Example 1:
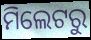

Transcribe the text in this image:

ମିଲେଟରୁ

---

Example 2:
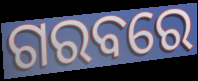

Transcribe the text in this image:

ଗରବରେ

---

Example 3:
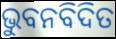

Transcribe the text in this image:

ଭୁବନବିଦିତ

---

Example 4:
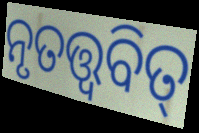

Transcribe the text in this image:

ନୃତତ୍ତ୍ୱବିତ୍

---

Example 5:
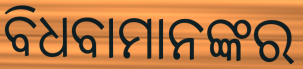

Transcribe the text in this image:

ବିଧବାମାନଙ୍କର